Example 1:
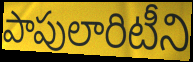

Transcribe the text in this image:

పాపులారిటీని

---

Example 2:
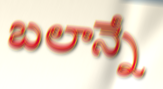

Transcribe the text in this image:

బలాన్నే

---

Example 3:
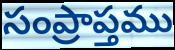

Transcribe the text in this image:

సంప్రాప్తము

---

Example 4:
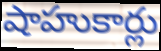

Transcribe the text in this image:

షాహుకార్లు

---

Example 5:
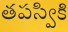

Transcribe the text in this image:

తపస్వికి